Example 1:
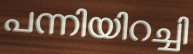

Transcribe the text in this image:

പന്നിയിറച്ചി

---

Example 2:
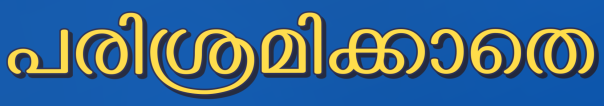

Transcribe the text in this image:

പരിശ്രമിക്കാതെ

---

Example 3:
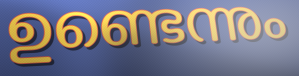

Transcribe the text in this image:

ഉണ്ടെന്നും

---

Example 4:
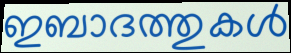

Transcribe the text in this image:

ഇബാദത്തുകൾ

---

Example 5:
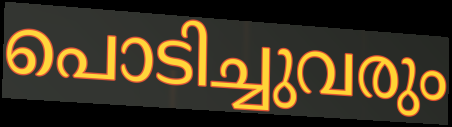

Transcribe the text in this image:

പൊടിച്ചുവരും